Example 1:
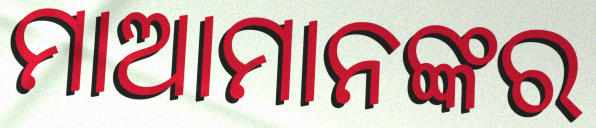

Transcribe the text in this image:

ମାଆମାନଙ୍କର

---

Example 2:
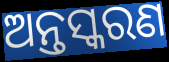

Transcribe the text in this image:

ଅନ୍ତସ୍କରଣ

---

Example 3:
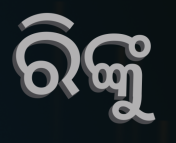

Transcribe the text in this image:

ରିଙ୍କୁ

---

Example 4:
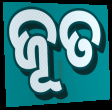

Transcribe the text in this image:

ଜୂତ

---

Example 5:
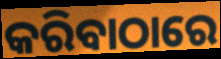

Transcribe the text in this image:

କରିବାଠାରେ